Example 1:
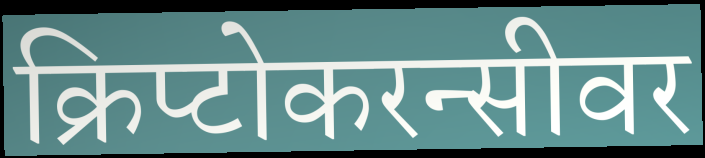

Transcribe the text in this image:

क्रिप्टोकरन्सीवर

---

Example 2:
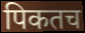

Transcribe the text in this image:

पिकतच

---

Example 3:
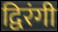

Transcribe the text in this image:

द्विरंगी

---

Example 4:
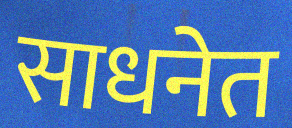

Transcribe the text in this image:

साधनेत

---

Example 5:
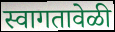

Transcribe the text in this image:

स्वागतावेळी